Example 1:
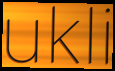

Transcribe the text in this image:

ukli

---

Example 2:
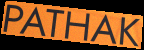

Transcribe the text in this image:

PATHAK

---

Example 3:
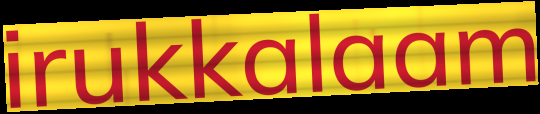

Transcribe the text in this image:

irukkalaam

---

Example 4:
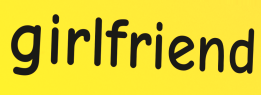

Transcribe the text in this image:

girlfriend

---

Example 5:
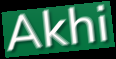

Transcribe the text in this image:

Akhi